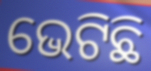
ଭେଟିଛି